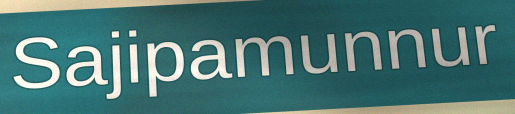
Sajipamunnur